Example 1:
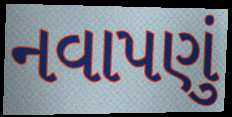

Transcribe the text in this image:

નવાપણું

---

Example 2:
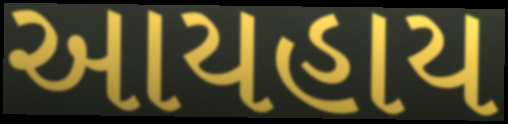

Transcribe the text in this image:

આયહાય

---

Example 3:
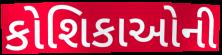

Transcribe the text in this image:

કોશિકાઓની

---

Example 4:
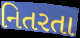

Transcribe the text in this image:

નિતરતા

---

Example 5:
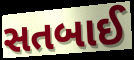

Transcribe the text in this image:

સતબાઈ